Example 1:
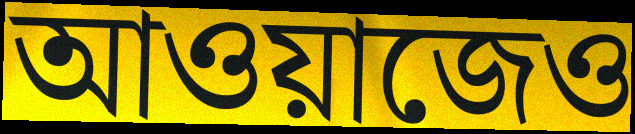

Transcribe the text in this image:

আওয়াজেও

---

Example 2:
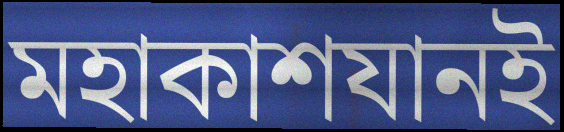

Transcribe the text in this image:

মহাকাশযানই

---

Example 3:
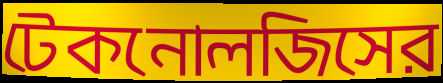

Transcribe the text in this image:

টেকনোলজিসের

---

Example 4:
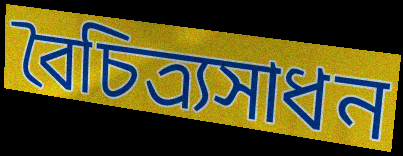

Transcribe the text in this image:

বৈচিত্র্যসাধন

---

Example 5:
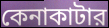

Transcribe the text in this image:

কেনাকাটার